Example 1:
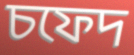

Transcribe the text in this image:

চফেদ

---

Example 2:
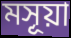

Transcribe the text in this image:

মসূয়া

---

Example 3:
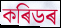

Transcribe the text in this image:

কৰিডৰ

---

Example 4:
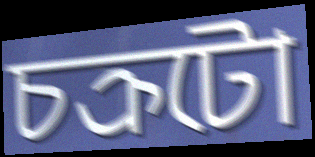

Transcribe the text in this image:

চক্ৰটো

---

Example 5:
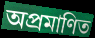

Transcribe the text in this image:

অপ্ৰমাণিত